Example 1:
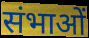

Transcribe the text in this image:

संभाओं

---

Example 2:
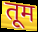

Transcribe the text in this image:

तूम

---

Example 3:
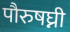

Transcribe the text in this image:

पौरुषघ्नी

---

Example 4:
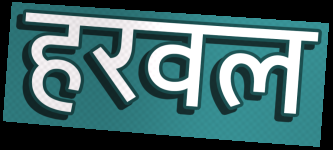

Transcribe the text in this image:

हरवल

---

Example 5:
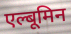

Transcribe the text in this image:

एल्बूमिन